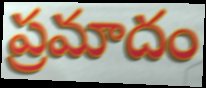
ప్రమాదం